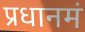
प्रधानमं